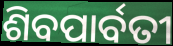
ଶିବପାର୍ବତୀ